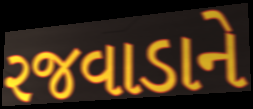
રજવાડાને